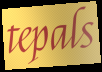
tepals